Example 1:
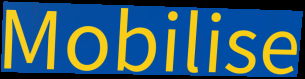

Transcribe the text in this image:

Mobilise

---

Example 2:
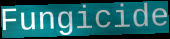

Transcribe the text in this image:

Fungicide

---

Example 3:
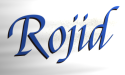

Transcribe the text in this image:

Rojid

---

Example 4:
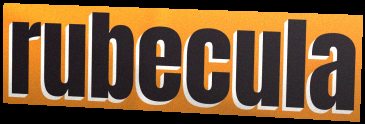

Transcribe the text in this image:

rubecula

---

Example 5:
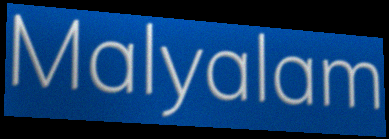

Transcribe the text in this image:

Malyalam